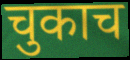
चुकाच